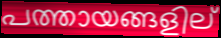
പത്തായങ്ങളില്